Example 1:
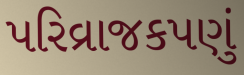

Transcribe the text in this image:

પરિવ્રાજકપણું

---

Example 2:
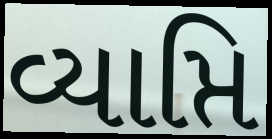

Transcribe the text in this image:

વ્યાપ્તિ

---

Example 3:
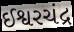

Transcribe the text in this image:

ઈશ્વરચંદ્ર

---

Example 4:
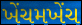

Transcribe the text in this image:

ખેંચમખેંચ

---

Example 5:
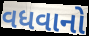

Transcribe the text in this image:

વધવાનો